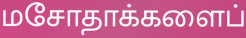
மசோதாக்களைப்